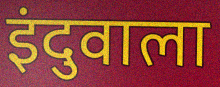
इंदुवाला